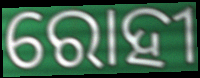
ରୋହୀ